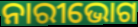
ନାରୀଭୋଗ